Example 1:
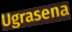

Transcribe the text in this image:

Ugrasena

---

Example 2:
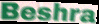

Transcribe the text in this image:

Beshra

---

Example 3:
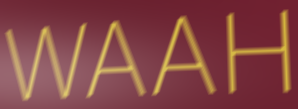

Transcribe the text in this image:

WAAH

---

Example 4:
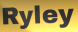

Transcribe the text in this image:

Ryley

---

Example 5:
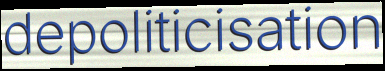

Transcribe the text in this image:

depoliticisation